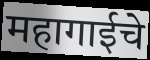
महागाईचे